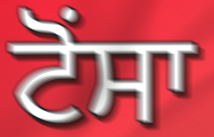
ਟੋਂਸਾ